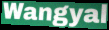
Wangyal